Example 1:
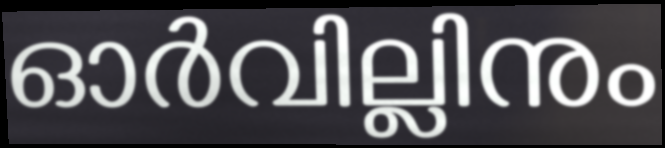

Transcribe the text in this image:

ഓർവില്ലിനും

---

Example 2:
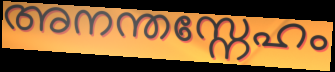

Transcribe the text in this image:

അനന്തസ്നേഹം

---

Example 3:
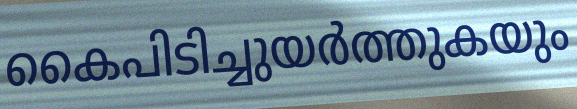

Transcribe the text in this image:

കൈപിടിച്ചുയർത്തുകയും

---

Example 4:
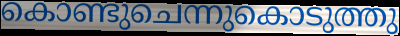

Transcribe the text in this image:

കൊണ്ടുചെന്നുകൊടുത്തു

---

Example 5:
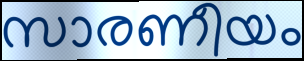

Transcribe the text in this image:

സാരണീയം